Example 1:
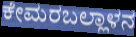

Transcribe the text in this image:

ಕೇಮರಬಲ್ಲಾಳನ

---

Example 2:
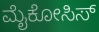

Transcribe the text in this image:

ಮೈಕೋಸಿಸ್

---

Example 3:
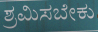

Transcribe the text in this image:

ಶ್ರಮಿಸಬೇಕು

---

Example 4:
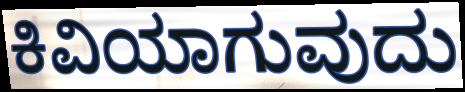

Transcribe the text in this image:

ಕಿವಿಯಾಗುವುದು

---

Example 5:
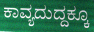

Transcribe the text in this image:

ಕಾವ್ಯದುದ್ದಕ್ಕೂ